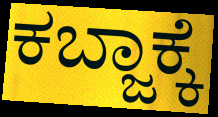
ಕಬ್ಜಾಕ್ಕೆ